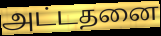
அட்டதனை